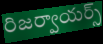
రిజర్వాయర్స్